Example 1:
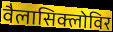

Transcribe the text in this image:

वैलासिक्लोविर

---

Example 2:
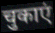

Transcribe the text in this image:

चुकाएं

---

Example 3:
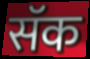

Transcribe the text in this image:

सॅक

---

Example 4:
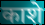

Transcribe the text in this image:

काशे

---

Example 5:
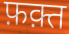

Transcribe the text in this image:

फ़क़्त